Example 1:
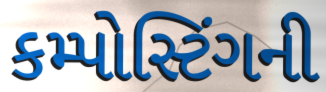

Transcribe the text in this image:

કમ્પોસ્ટિંગની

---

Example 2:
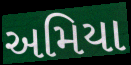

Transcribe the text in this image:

અમિયા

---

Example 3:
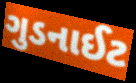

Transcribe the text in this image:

ગુડનાઈટ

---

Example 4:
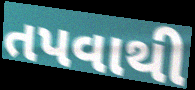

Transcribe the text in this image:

તપવાથી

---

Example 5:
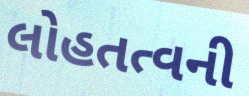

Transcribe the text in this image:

લોહતત્વની